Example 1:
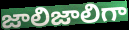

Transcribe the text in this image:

జాలిజాలిగా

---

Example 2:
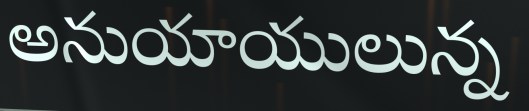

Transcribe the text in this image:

అనుయాయులున్న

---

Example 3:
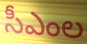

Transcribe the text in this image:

సీఎంల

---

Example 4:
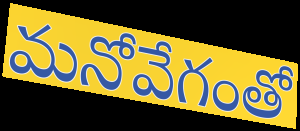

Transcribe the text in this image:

మనోవేగంతో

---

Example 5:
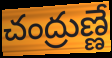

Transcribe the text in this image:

చంద్రుణ్ణే